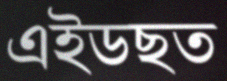
এইডছত